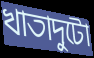
খাতাদুটো